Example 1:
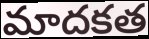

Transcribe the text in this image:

మాదకత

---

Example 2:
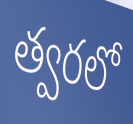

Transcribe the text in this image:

త్వరలో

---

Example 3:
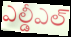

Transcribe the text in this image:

ఎల్డీఎల్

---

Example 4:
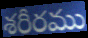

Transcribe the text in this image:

శరీరము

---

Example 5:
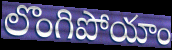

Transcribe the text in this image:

లొంగిపోయాం